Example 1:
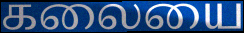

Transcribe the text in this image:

கலையை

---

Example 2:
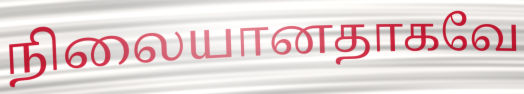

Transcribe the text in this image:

நிலையானதாகவே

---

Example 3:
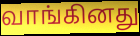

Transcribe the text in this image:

வாங்கினது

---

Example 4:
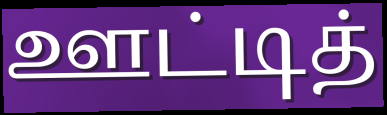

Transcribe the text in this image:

ஊட்டித்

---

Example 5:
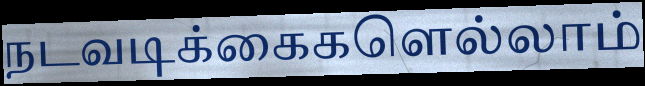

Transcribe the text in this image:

நடவடிக்கைகளெல்லாம்